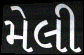
મેલી